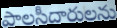
పాలసీదారులను